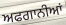
ਅਫਗਾਨੀਆਂ